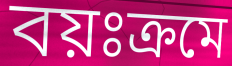
বয়ঃক্রমে